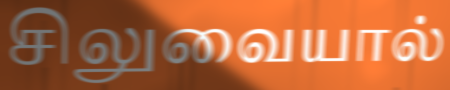
சிலுவையால்